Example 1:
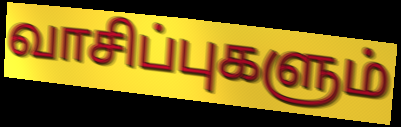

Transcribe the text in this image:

வாசிப்புகளும்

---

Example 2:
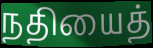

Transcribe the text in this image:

நதியைத்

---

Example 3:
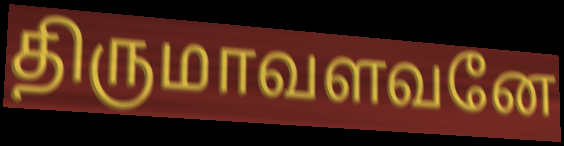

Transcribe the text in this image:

திருமாவளவனே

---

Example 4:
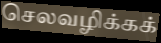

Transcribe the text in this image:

செலவழிக்கக்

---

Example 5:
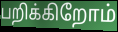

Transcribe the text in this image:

பறிக்கிறோம்